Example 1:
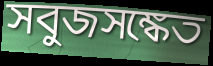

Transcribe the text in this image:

সবুজসঙ্কেত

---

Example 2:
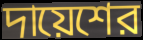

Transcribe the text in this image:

দায়েশের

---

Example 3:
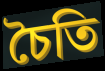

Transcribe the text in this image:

চৈতি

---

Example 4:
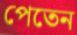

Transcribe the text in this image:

পেতেন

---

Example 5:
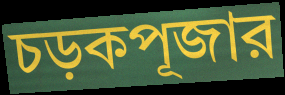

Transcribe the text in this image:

চড়কপূজার